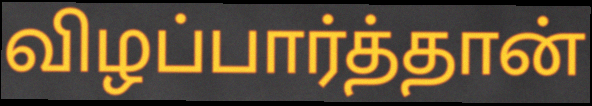
விழப்பார்த்தான்